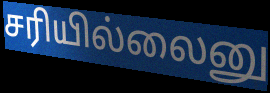
சரியில்லைனு